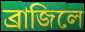
ব্রাজিলে